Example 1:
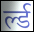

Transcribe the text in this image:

र्ल्ड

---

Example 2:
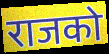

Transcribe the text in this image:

राजको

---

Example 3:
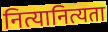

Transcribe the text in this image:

नित्यानित्यता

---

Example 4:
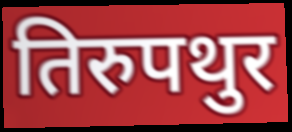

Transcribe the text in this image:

तिरुपथुर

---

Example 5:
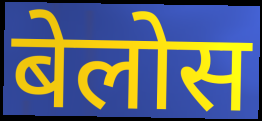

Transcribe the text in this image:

बेलोस